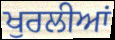
ਖੁਰਲੀਆਂ